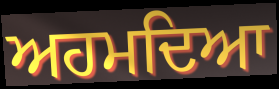
ਅਹਮਦਿਆ